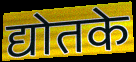
द्योतके